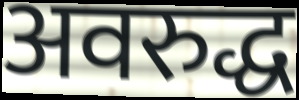
अवरुद्ध